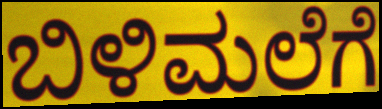
ಬಿಳಿಮಲೆಗೆ